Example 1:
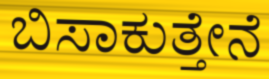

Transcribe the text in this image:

ಬಿಸಾಕುತ್ತೇನೆ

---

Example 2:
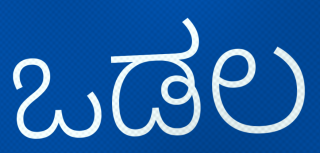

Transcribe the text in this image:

ಒಡಲ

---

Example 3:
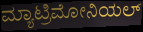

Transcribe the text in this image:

ಮ್ಯಾಟ್ರಿಮೋನಿಯಲ್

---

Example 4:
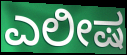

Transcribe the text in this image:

ಎಲೀಷ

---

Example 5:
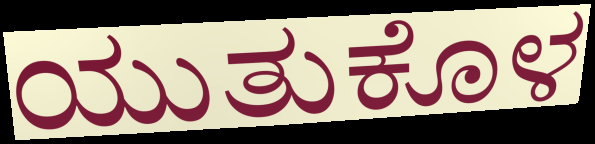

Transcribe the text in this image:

ಯುತುಕೊಳ